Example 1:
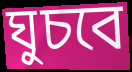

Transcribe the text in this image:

ঘুচবে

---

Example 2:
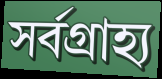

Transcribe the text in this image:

সর্বগ্রাহ্য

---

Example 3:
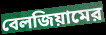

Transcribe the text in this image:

বেলজিয়ামের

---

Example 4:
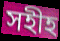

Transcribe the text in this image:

সহীহ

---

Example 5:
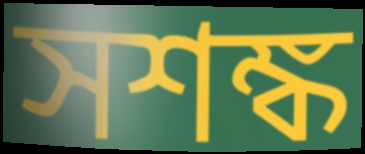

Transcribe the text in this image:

সশঙ্ক